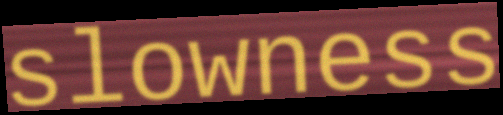
slowness